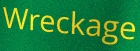
Wreckage